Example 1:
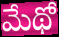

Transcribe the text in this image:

మేథో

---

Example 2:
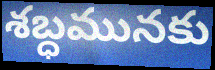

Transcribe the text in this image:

శబ్ధమునకు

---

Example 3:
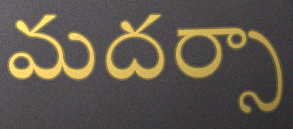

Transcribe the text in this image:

మదర్సా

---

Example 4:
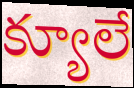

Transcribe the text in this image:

క్యూలే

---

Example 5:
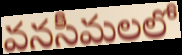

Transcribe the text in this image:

వనసీమలలో